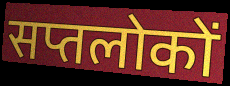
सप्तलोकों